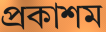
প্ৰকাশম